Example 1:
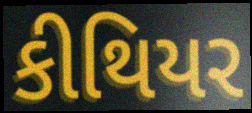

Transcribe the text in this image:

કીથિયર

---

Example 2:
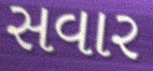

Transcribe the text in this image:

સવાર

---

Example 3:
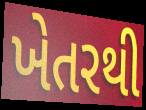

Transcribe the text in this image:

ખેતરથી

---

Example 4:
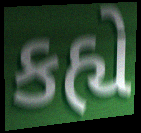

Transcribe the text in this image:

કહ્યે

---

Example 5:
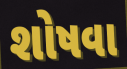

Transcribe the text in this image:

શોષવા